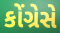
કોંગ્રેસે